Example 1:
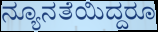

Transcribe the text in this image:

ನ್ಯೂನತೆಯಿದ್ದರೂ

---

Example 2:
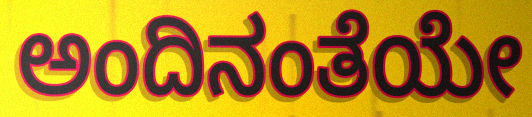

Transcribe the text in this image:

ಅಂದಿನಂತೆಯೇ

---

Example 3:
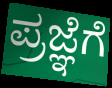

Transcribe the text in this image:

ಪ್ರಜ್ಞೆಗೆ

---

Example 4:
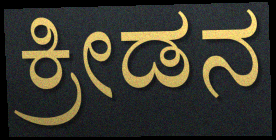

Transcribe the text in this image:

ಕ್ರೀಡನ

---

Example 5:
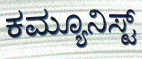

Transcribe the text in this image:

ಕಮ್ಯೂನಿಸ್ಟ್